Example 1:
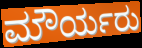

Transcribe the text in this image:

ಮೌರ್ಯರು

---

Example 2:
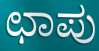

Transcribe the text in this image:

ಛಾಪು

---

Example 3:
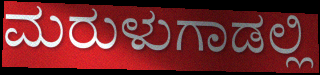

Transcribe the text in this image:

ಮರುಳುಗಾಡಲ್ಲಿ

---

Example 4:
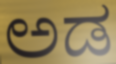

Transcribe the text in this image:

ಅಡ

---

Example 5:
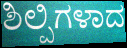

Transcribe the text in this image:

ಶಿಲ್ಪಿಗಳಾದ